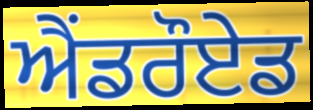
ਐਂਡਰੌਏਡ